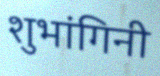
शुभांगिनी